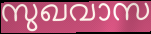
സുഖവാസ